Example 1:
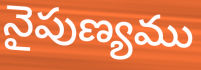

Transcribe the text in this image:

నైపుణ్యము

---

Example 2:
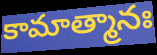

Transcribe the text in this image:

కామాత్మానః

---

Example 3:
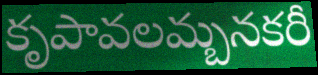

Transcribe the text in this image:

కృపావలమ్బనకరీ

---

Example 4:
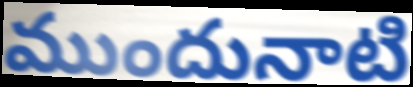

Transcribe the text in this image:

ముందునాటి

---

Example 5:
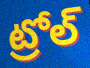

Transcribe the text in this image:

ట్రోల్